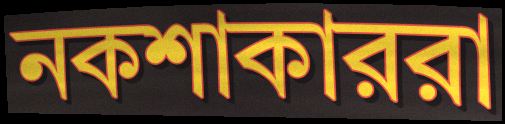
নকশাকাররা